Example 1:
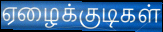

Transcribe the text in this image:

ஏழைக்குடிகள்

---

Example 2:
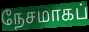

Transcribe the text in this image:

நேசமாகப்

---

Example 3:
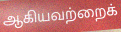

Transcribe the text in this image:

ஆகியவற்றைக்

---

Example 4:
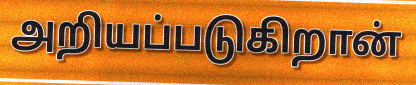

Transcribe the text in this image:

அறியப்படுகிறான்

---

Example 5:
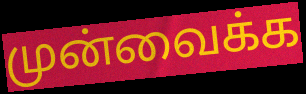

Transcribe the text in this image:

முன்வைக்க